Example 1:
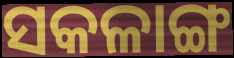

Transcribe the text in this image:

ସକଳାଙ୍ଗ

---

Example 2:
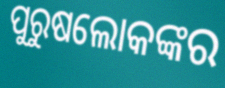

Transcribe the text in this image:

ପୁରୁଷଲୋକଙ୍କର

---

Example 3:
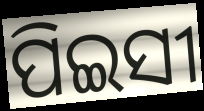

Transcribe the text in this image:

ପିଇସୀ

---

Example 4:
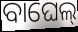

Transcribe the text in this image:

ବାଘେଲ୍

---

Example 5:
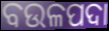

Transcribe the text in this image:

ବଉଳପଦା